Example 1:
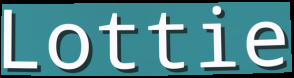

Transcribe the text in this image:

Lottie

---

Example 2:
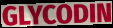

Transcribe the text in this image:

GLYCODIN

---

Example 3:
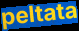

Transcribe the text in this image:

peltata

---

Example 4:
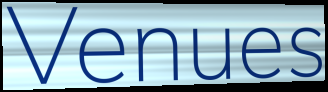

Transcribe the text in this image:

Venues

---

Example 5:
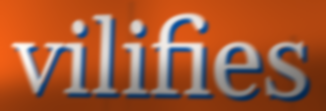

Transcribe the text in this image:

vilifies